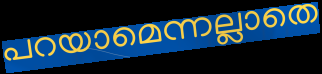
പറയാമെന്നല്ലാതെ